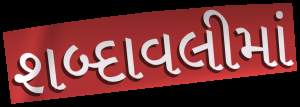
શબ્દાવલીમાં